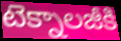
టెక్నాలజీకి